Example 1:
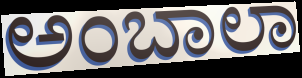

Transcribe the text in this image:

ಅಂಬಾಲಾ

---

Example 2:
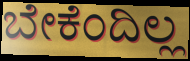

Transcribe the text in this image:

ಬೇಕೆಂದಿಲ್ಲ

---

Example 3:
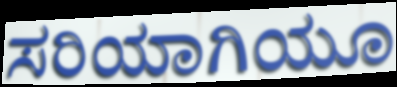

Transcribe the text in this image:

ಸರಿಯಾಗಿಯೂ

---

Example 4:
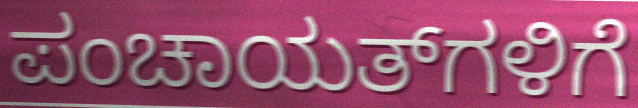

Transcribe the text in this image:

ಪಂಚಾಯತ್‌ಗಳಿಗೆ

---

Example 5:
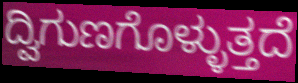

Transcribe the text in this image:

ದ್ವಿಗುಣಗೊಳ್ಳುತ್ತದೆ